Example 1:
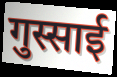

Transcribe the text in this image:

गुस्साई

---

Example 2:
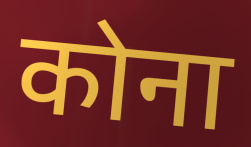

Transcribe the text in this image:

कोना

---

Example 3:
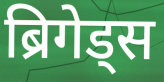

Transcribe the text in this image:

ब्रिगेड्स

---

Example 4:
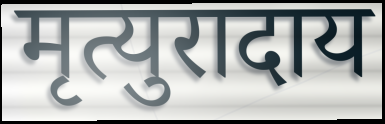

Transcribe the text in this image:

मृत्युरादाय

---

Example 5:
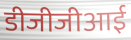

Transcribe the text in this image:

डीजीजीआई